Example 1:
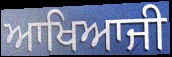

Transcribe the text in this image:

ਆਖਿਆਜੀ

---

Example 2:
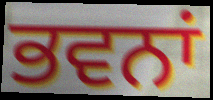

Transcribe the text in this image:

ਭਵਨਾਂ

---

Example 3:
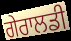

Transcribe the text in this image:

ਗੇਰਾਲਡੀ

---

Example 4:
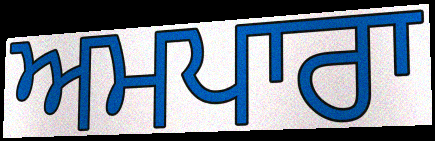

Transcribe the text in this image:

ਅਮਪਾਰਾ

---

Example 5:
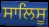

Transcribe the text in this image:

ਸਾਲਿਸੂ